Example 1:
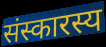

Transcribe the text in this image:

संस्कारस्य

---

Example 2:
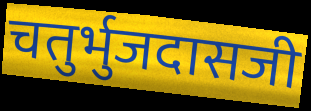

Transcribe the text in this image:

चतुर्भुजदासजी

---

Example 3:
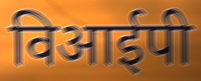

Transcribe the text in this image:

विआईपी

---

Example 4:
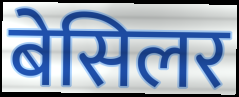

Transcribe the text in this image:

बेसिलर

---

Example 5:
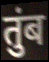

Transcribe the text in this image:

तुंब